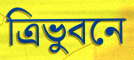
ত্রিভুবনে